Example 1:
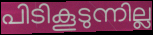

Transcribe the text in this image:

പിടികൂടുന്നില്ല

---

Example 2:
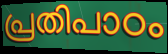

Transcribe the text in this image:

പ്രതിപാഠം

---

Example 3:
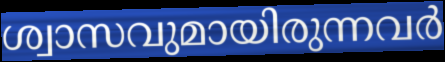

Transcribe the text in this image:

ശ്വാസവുമായിരുന്നവർ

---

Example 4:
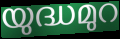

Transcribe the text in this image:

യുദ്ധമുറ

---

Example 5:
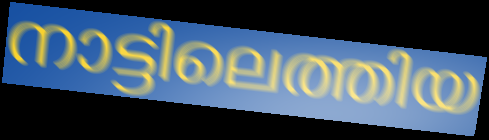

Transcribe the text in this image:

നാട്ടിലെത്തിയ